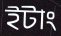
ইটাং